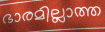
ഭാരമില്ലാത്ത